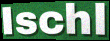
Ischl